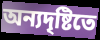
অন্যদৃষ্টিতে